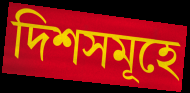
দিশসমূহে